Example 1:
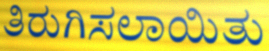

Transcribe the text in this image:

ತಿರುಗಿಸಲಾಯಿತು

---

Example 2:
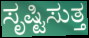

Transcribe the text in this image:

ಸೃಷ್ಟಿಸುತ್ತ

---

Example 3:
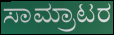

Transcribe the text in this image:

ಸಾಮ್ರಾಟರ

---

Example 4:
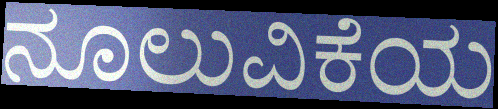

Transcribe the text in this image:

ನೂಲುವಿಕೆಯ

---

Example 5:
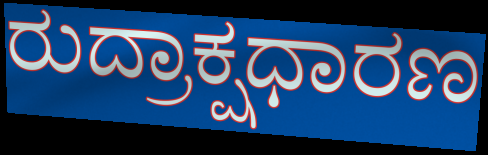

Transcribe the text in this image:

ರುದ್ರಾಕ್ಷಧಾರಣ